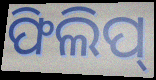
ଫିଲିପ୍